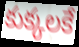
కుక్కలకే